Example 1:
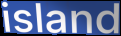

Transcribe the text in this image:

island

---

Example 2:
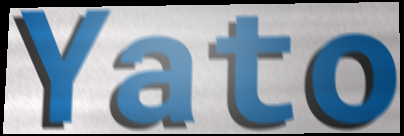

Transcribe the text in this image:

Yato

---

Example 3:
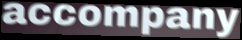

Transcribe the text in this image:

accompany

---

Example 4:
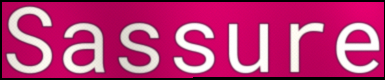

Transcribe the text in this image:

Sassure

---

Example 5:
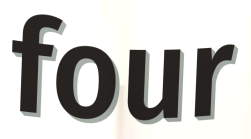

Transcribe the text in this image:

four